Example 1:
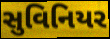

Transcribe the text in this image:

સુવિનિયર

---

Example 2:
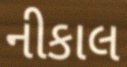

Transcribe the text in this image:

નીકાલ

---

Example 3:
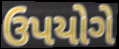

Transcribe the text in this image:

ઉપયોગે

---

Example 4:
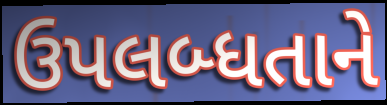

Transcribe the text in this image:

ઉપલબ્ધતાને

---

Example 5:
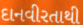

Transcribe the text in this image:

દાનવીરતાથી